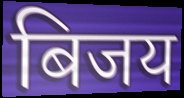
बिजय